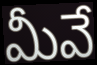
మీవే